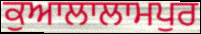
ਕੁਆਲਾਲਾਮਪੁਰ